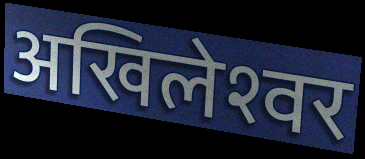
अखिलेश्वर